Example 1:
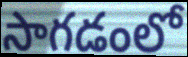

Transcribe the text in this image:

సాగడంలో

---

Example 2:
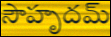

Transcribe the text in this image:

సౌహృదమ్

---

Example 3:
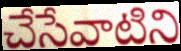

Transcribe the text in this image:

చేసేవాటిని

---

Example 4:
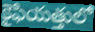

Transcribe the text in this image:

కైఫియత్తులో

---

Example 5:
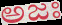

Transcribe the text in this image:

అజః